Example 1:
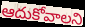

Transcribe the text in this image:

ఆదుకోవాలని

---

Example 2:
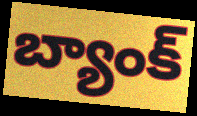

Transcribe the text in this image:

బ్యాంక్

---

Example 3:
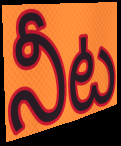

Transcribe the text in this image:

నీట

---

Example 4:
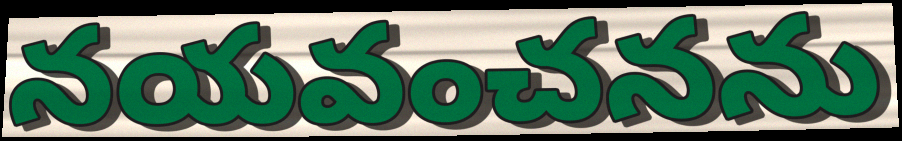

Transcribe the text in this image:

నయవంచనను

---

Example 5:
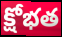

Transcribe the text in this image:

క్షోభత